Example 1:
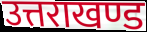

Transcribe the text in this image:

उत्तराखण्ड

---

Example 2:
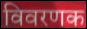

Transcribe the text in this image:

विवरणक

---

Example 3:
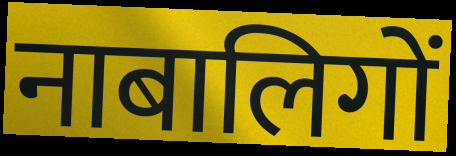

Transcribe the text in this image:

नाबालिगों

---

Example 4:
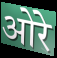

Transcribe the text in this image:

ओरे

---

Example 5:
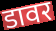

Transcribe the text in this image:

डावर